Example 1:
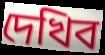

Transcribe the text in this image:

দেখিব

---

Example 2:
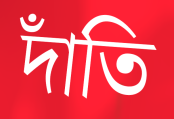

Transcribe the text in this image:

দাঁতি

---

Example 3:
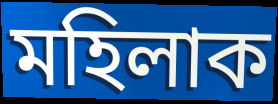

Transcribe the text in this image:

মহিলাক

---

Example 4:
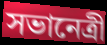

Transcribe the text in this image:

সভানেত্ৰী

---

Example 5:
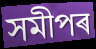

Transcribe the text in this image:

সমীপৰ